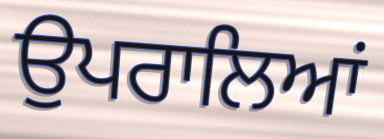
ਉਪਰਾਲਿਆਂ